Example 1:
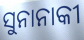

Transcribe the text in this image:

ସୁନାନାକୀ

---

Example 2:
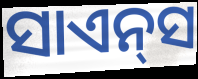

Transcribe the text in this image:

ସାଏନ୍‌ସ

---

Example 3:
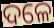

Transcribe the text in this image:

ଦଳେ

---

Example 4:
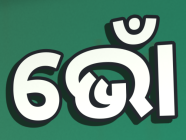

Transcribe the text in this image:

ଭୋଁ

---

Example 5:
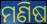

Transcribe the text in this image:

ମଣିଷ